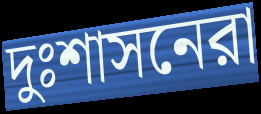
দুঃশাসনেরা